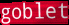
goblet